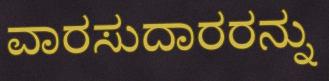
ವಾರಸುದಾರರನ್ನು